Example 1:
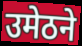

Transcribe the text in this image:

उमेठने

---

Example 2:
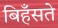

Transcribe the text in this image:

बिहँसते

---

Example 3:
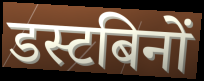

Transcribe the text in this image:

डस्टबिनों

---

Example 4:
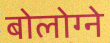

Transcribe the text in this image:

बोलोग्ने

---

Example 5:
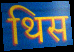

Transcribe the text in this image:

थिस